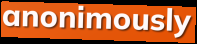
anonimously